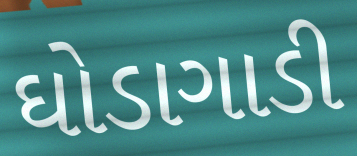
ઘોડાગાડી